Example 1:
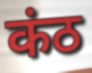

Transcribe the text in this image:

कंठ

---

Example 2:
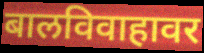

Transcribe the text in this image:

बालविवाहावर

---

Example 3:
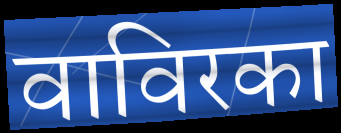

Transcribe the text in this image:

वाविरका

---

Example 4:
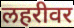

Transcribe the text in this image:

लहरीवर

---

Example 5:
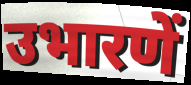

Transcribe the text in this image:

उभारणें